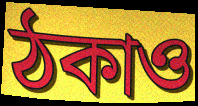
ঠকাও